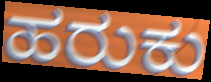
ಹರುಕು